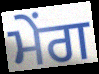
ਮੇਂਗ